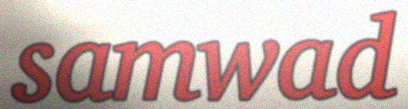
samwad